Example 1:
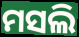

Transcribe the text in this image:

ମସଲି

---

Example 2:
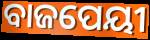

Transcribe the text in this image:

ବାଜପେୟୀ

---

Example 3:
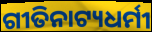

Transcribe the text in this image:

ଗୀତିନାଟ୍ୟଧର୍ମୀ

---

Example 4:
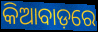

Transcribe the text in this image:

କିଆବାଡ଼ରେ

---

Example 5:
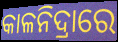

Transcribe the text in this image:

କାଳନିଦ୍ରାରେ